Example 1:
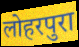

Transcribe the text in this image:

लोहरपुरा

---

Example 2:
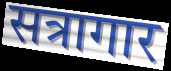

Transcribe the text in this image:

सत्रागार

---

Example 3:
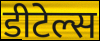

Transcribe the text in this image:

डीटेल्‍स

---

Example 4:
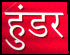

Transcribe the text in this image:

हुंडर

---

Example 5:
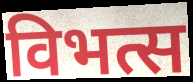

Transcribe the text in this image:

विभत्स